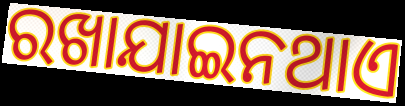
ରଖାଯାଇନଥାଏ